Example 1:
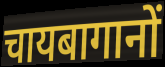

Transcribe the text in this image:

चायबागानों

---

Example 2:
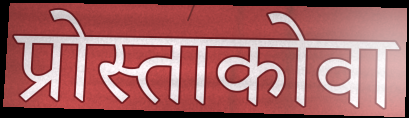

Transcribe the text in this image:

प्रोस्ताकोवा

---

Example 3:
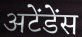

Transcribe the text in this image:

अटेंडेंस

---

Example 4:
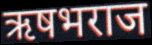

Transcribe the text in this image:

ऋषभराज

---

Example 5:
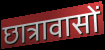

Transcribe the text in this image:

छात्रावासों